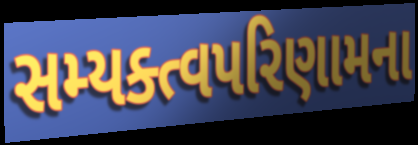
સમ્યક્ત્વપરિણામના